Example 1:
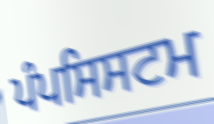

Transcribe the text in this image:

ਪੰਪਸਿਸਟਮ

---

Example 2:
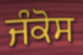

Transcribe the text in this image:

ਜੰਕੋਸ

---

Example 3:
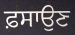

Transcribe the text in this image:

ਫ਼ਸਾਉਣ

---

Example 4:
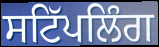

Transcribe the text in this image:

ਸਟਿੱਪਲਿੰਗ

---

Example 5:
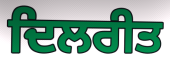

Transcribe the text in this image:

ਦਿਲਰੀਤ